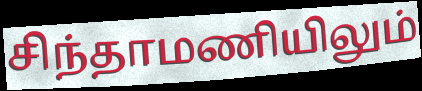
சிந்தாமணியிலும்